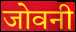
जोवनी